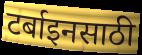
टर्बाइनसाठी